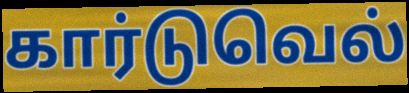
கார்டுவெல்